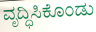
ವೃದ್ಧಿಸಿಕೊಂಡು